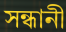
সন্ধানী